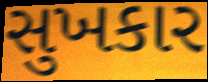
સુખકાર